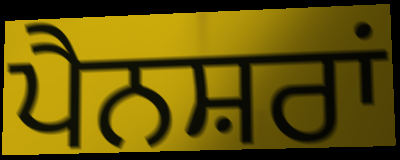
ਪੈਨਸ਼ਰਾਂ